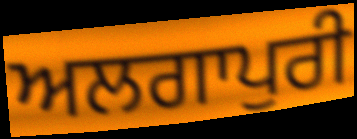
ਅਲਗਾਪੁਰੀ